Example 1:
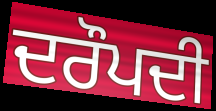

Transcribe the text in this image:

ਦਰੌਪਦੀ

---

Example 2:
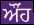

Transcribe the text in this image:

ਔਂਹ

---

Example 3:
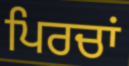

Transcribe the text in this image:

ਪਿਰਚਾਂ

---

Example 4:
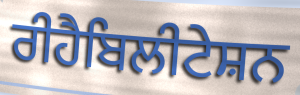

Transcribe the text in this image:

ਰੀਹੈਬਿਲੀਟੇਸ਼ਨ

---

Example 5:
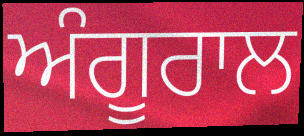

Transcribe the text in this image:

ਅੰਗੂਰਾਲ